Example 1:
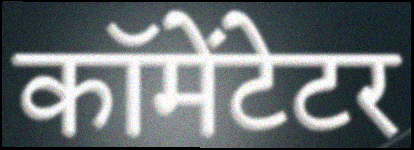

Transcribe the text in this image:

कॉमेंटेटर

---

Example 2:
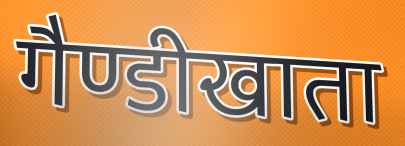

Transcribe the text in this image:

गैण्डीखाता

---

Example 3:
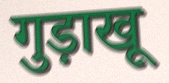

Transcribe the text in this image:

गुड़ाखू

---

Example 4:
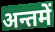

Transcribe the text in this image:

अन्तमें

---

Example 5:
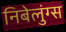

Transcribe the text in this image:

निबेलुंग्स